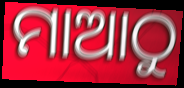
ମାଆଠୁ